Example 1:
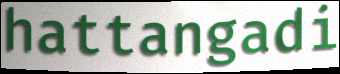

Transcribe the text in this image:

hattangadi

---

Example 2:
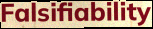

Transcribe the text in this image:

Falsifiability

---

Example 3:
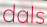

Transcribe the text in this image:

dals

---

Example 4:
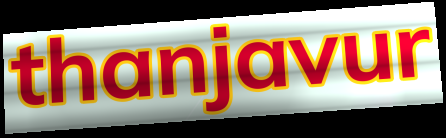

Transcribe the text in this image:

thanjavur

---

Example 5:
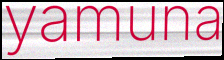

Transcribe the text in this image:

yamuna